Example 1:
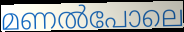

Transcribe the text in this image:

മണൽപോലെ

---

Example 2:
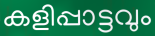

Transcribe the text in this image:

കളിപ്പാട്ടവും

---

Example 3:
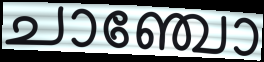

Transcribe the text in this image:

ചാഞ്ചോ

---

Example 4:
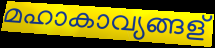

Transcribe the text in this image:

മഹാകാവ്യങ്ങള്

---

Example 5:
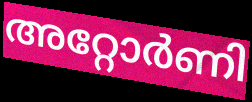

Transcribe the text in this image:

അറ്റോർണി